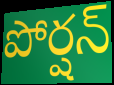
పోర్షన్